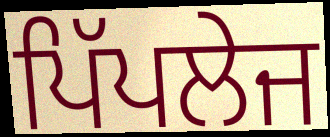
ਪਿੱਪਲੇਜ